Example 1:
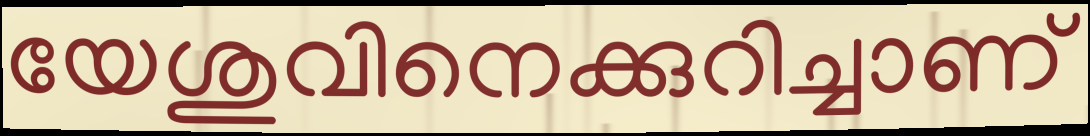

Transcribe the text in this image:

യേശുവിനെക്കുറിച്ചാണ്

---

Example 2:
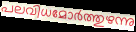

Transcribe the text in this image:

പലവിധമോർത്തുഴന്നു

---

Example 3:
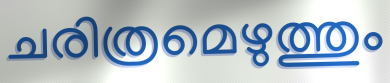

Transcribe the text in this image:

ചരിത്രമെഴുത്തും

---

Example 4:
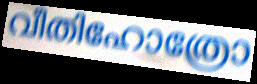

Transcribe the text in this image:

വീതിഹോത്രോ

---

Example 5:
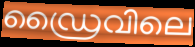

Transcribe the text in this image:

ഡ്രൈവിലെ